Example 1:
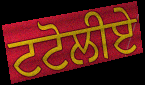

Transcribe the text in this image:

ਟਟੋਲੀਏ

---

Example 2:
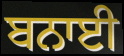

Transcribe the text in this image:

ਬਨਾਈ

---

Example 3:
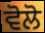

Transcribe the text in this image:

ਵੋਲੋ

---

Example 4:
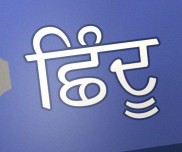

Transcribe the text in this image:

ਛਿੰਦੂ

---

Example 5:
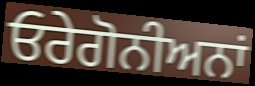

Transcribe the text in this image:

ਓਰੇਗੋਨੀਅਨਾਂ